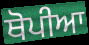
ਥੋਪੀਆ